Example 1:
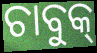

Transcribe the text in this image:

ଚାବୁକ୍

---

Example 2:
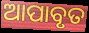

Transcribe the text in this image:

ଆପାବୃତ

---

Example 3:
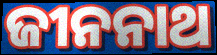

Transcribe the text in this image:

ଜୀନନାଥ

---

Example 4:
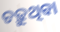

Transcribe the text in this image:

ଚଢ଼ୁଥିବା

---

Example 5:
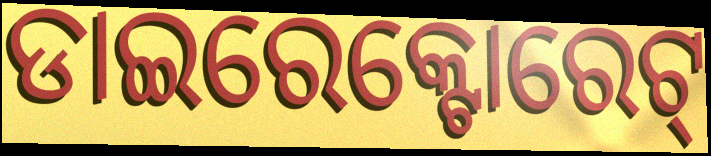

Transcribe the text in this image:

ଡାଇରେକ୍ଟୋରେଟ୍